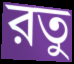
রতু